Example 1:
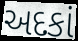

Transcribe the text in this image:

અદકાં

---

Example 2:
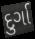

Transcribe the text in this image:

દુર્ગા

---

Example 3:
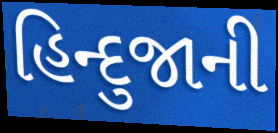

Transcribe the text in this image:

હિન્દુજાની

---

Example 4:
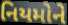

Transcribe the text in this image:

નિયમોને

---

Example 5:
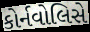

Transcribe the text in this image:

કોર્નવોલિસે